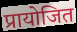
प्रायोजित